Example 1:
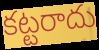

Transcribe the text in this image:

కట్టరాదు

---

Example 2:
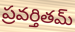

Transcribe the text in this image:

ప్రవర్తితమ్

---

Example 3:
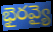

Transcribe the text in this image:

భైరవ్యై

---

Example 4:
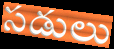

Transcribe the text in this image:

సడులు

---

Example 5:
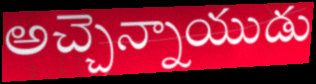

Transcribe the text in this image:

అచ్చెన్నాయుడు